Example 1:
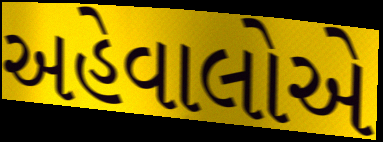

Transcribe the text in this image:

અહેવાલોએ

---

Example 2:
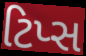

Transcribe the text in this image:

ટિપ્સ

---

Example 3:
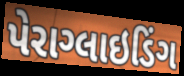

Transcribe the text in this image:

પેરાગ્લાઇડિંગ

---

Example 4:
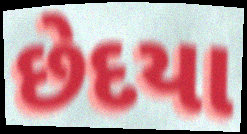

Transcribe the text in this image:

છેદયા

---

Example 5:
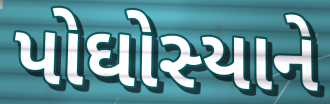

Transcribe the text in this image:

પોઘોસ્યાને